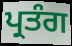
ਪ੍ਰਤੰਗ